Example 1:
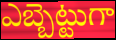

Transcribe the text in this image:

ఎబ్బెట్టుగా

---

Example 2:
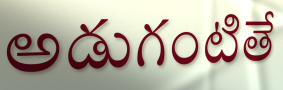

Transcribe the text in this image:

అడుగంటితే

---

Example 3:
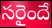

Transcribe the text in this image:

సరైందే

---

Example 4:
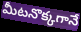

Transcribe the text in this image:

మీటనొక్కగానే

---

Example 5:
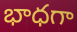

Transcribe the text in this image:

భాధగా